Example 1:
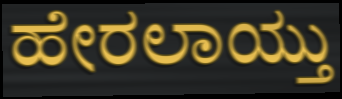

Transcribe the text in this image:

ಹೇರಲಾಯ್ತು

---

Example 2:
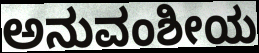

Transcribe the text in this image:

ಅನುವಂಶೀಯ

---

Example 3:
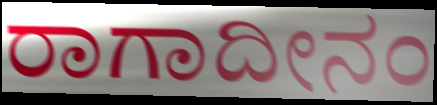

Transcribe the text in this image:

ರಾಗಾದೀನಂ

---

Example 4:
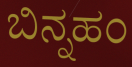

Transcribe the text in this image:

ಬಿನ್ನಹಂ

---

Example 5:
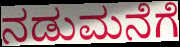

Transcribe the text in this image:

ನಡುಮನೆಗೆ